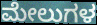
ಮೇಲುಗಳ